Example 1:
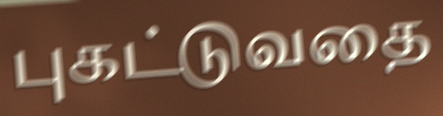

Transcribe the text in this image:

புகட்டுவதை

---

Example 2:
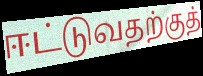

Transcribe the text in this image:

ஈட்டுவதற்குத்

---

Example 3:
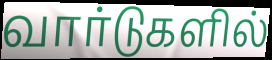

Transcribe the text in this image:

வார்டுகளில்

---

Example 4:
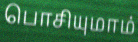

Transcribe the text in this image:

பொசியுமாம்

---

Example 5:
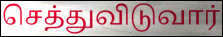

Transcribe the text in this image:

செத்துவிடுவார்